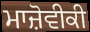
ਮਾਜ਼ੋਵੀਕੀ